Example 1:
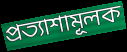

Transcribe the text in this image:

প্রত্যাশামূলক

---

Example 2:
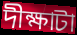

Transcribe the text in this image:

দীক্ষাটা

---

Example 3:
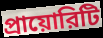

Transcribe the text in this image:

প্রায়োরিটি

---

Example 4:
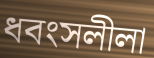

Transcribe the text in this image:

ধবংসলীলা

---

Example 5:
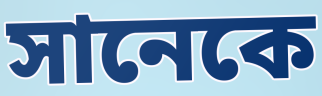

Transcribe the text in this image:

সানেকে